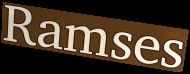
Ramses